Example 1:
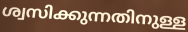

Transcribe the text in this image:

ശ്വസിക്കുന്നതിനുള്ള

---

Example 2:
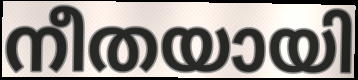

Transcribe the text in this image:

നീതയായി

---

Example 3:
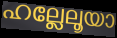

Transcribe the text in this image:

ഹല്ലേലൂയാ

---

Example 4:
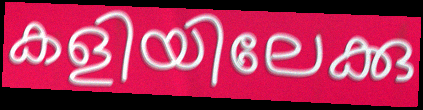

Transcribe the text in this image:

കളിയിലേക്കു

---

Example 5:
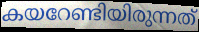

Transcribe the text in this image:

കയറേണ്ടിയിരുന്നത്